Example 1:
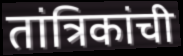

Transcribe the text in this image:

तांत्रिकांची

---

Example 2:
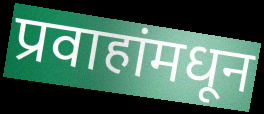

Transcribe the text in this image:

प्रवाहांमधून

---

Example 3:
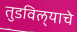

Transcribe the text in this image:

तुडविल्याचे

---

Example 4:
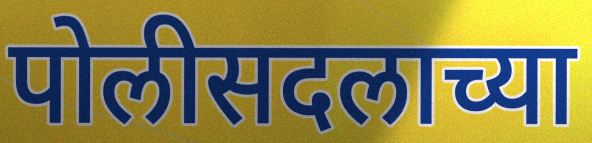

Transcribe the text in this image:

पोलीसदलाच्या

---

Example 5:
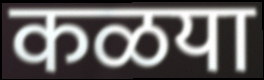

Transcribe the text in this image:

कळया